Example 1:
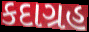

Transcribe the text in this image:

કદાગ્રહ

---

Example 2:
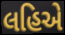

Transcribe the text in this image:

લહિએ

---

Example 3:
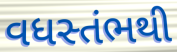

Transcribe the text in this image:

વધસ્તંભથી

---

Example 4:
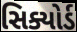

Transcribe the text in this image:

સિક્યોર્ડ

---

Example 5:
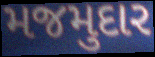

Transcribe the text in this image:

મજમુદાર